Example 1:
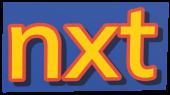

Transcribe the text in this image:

nxt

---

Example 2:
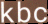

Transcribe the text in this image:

kbc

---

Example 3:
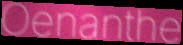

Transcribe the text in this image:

Oenanthe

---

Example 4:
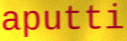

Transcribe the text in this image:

aputti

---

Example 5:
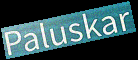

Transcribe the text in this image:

Paluskar